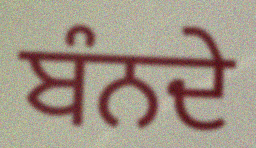
ਬੰਨਦੇ